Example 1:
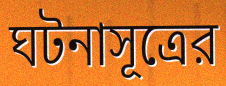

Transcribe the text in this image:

ঘটনাসূত্রের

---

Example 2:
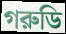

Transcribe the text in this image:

গরুডি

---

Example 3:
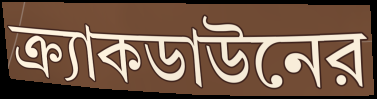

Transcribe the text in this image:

ক্র্যাকডাউনের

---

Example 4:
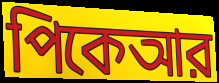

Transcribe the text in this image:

পিকেআর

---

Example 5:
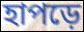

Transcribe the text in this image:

হাপড়ে